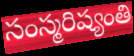
సంస్మరిష్యంతి